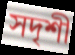
সদৃশী